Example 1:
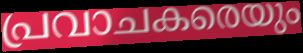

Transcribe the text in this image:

പ്രവാചകരെയും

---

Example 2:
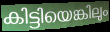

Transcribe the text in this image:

കിട്ടിയെങ്കിലും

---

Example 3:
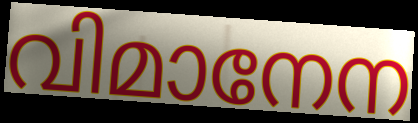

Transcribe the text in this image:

വിമാനേന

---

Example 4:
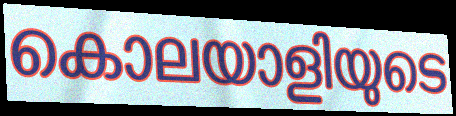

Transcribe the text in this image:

കൊലയാളിയുടെ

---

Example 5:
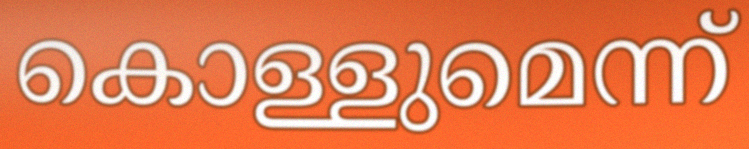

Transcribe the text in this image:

കൊള്ളുമെന്ന്